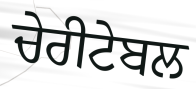
ਚੇਰੀਟੇਬਲ